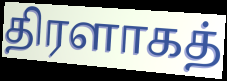
திரளாகத்